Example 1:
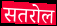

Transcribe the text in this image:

सतरोल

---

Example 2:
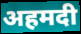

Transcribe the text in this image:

अहमदी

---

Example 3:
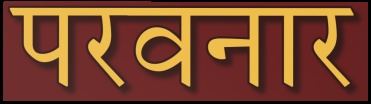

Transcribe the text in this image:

परवनार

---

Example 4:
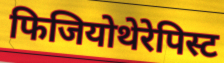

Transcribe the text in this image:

फिजियोथेरेपिस्ट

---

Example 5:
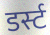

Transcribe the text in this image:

डर्स्ट